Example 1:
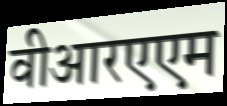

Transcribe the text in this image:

वीआरएएम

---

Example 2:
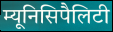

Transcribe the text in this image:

म्यूनिसिपैलिटी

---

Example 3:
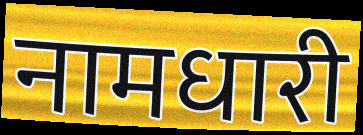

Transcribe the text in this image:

नामधारी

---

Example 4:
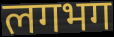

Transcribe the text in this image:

लगभग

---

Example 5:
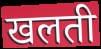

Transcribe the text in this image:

खलती